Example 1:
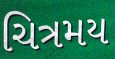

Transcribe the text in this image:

ચિત્રમય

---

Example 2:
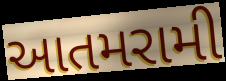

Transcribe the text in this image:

આતમરામી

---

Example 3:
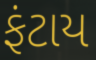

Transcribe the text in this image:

ફંટાય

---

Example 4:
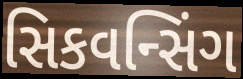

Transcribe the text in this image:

સિકવન્સિંગ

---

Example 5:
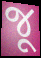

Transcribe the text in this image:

જૂ